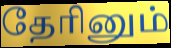
தேரினும்